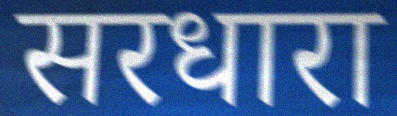
सरधारा